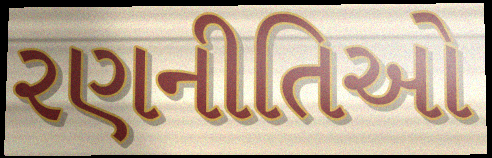
રણનીતિઓ